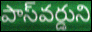
పాస్‌వర్డుని